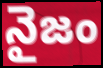
నైజం